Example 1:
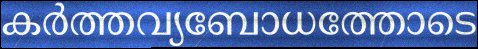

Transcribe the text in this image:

കർത്തവ്യബോധത്തോടെ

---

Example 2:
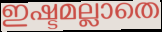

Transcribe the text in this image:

ഇഷ്ടമല്ലാതെ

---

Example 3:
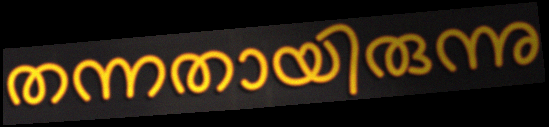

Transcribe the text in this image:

തന്നതായിരുന്നു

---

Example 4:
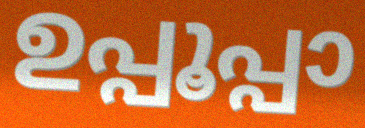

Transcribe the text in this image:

ഉപ്പൂപ്പാ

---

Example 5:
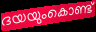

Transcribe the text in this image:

ദയയുംകൊണ്ട്